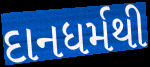
દાનધર્મથી